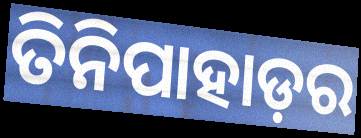
ତିନିପାହାଡ଼ର